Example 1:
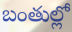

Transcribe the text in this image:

బంతుల్లో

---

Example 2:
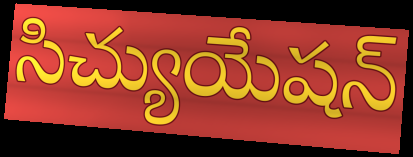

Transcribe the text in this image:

సిచ్యుయేషన్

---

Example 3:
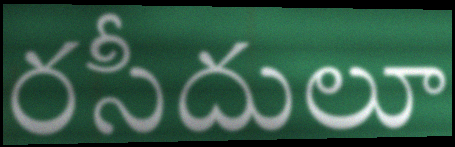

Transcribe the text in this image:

రసీదులూ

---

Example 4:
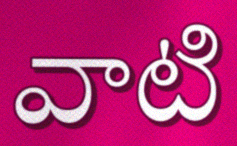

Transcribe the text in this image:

వాటి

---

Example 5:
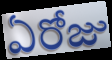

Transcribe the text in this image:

ఏరోజు